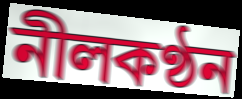
নীলকণ্ঠন